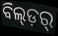
ବିଲ୍ଡ଼ର୍